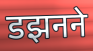
डझनने